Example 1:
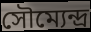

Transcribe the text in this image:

সৌম্যেন্দ্র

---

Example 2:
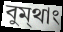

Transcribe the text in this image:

বুম্থাং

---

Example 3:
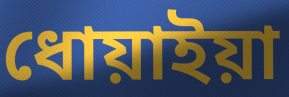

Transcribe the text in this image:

ধোয়াইয়া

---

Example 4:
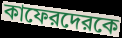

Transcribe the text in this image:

কাফেরদেরকে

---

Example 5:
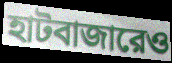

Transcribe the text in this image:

হাটবাজারেও